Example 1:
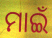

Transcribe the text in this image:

ମାଇଁ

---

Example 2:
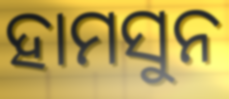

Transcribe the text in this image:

ହାମସୁନ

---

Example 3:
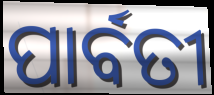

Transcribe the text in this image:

ପାର୍ବତୀ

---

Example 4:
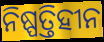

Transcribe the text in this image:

ନିଷ୍ପତ୍ତିହୀନ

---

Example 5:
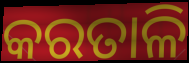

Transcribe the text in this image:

କରତାଳି